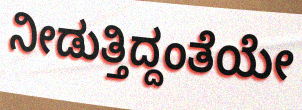
ನೀಡುತ್ತಿದ್ದಂತೆಯೇ